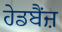
ਹੇਡਬੈਂਜ਼